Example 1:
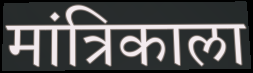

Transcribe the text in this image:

मांत्रिकाला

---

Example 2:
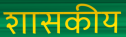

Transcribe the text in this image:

शासकीय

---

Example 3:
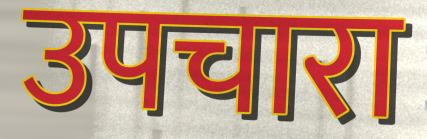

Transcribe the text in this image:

उपचारा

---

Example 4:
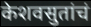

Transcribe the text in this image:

केशवसुतांचं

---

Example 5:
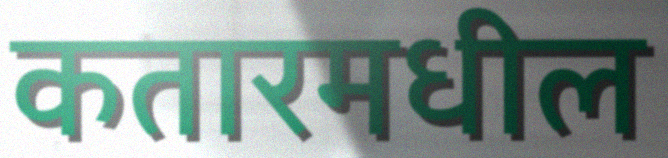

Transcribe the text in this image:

कतारमधील